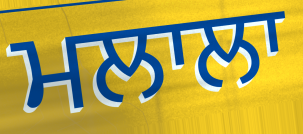
ਮਲਾਲਾ